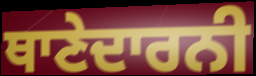
ਥਾਣੇਦਾਰਨੀ